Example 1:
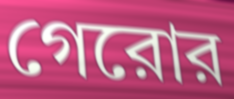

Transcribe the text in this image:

গেরোর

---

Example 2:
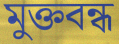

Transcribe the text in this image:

মুক্তবন্ধ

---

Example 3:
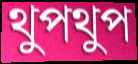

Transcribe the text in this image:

থুপথুপ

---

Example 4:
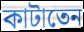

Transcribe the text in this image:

কাটাতেন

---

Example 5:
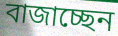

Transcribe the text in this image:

বাজাচ্ছেন